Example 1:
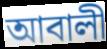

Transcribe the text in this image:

আবালী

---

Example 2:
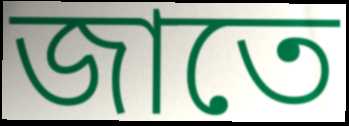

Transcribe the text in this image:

জাতে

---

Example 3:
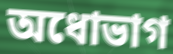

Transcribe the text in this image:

অধোভাগ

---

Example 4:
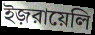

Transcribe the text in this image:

ইজ়রায়েলি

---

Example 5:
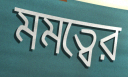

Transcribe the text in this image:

মমত্বের